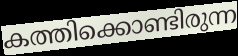
കത്തിക്കൊണ്ടിരുന്ന